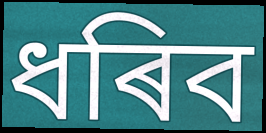
ধৰিব